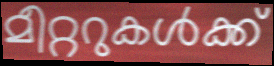
മീറ്ററുകൾക്ക്